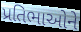
પ્રતિભાઓને